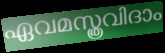
ഏവമസ്ത്രവിദാം